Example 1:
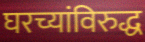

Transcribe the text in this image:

घरच्यांविरुद्ध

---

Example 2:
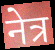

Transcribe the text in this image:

नेत्र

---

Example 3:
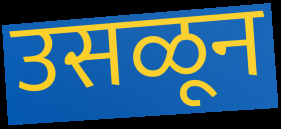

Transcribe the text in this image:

उसळून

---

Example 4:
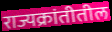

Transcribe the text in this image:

राज्यक्रांतीतील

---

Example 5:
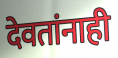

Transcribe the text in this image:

देवतांनाही